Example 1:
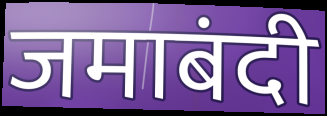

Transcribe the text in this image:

जमाबंदी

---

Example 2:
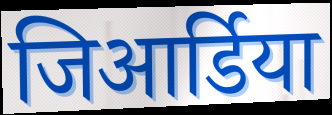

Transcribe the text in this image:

जिआर्डिया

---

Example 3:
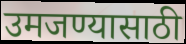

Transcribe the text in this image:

उमजण्यासाठी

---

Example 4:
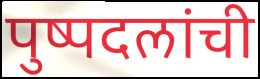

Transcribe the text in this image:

पुष्पदलांची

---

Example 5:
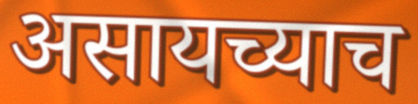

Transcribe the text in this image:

असायच्याच